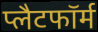
प्लैटफॉर्म